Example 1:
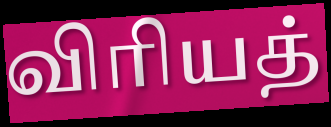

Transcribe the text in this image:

விரியத்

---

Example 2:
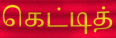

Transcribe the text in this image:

கெட்டித்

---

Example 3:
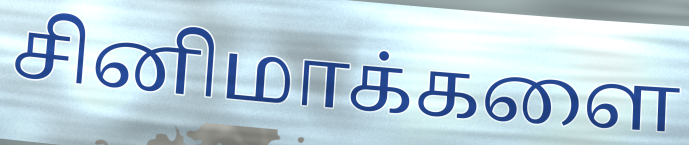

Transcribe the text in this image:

சினிமாக்களை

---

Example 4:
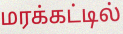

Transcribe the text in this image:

மரக்கட்டில்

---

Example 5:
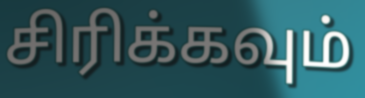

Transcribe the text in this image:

சிரிக்கவும்